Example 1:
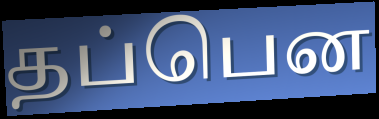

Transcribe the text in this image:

தப்பென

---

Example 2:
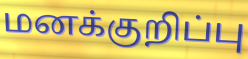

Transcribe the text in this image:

மனக்குறிப்பு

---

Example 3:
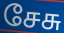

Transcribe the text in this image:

சேசு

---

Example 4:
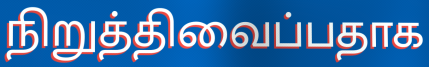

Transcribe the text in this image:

நிறுத்திவைப்பதாக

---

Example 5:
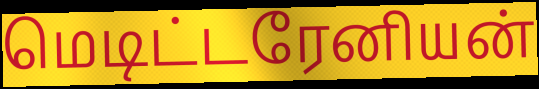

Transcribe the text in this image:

மெடிட்டரேனியன்